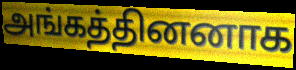
அங்கத்தினனாக